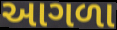
આગળા